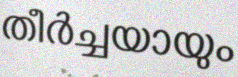
തീർച്ചയായും